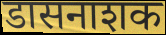
डासनाशक